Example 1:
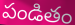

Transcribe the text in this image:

పండితం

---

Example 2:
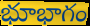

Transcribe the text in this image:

భూభాగం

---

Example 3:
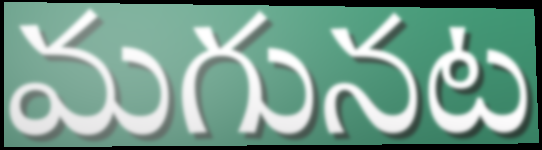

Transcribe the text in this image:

మగునట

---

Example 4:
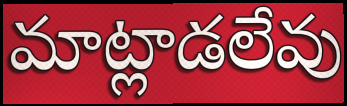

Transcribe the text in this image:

మాట్లాడలేవు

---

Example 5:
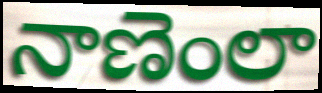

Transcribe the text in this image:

నాణెంలా